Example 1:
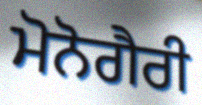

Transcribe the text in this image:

ਮੋਨੋਗੈਰੀ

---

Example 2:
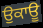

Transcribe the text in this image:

ਉਕਾਊ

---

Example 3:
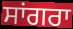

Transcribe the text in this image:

ਸਾਂਗਰਾ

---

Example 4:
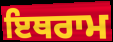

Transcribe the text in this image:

ਇਥਰਾਮ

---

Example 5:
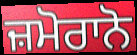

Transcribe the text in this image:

ਜ਼ਮੋਰਾਨੋ